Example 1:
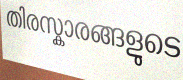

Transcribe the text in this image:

തിരസ്കാരങ്ങളുടെ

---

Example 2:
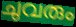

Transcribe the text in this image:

ചുവരും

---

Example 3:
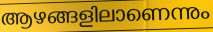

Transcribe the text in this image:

ആഴങ്ങളിലാണെന്നും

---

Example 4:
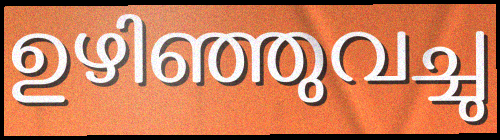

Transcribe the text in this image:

ഉഴിഞ്ഞുവച്ചു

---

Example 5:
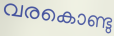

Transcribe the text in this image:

വരകൊണ്ടു